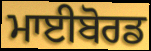
ਮਾਈਬੋਰਡ